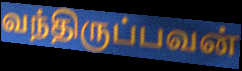
வந்திருப்பவன்